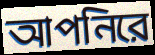
আপনিরে